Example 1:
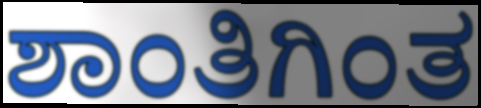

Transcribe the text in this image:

ಶಾಂತಿಗಿಂತ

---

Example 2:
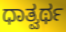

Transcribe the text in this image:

ಧಾತ್ವರ್ಥ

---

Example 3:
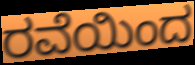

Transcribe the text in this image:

ರವೆಯಿಂದ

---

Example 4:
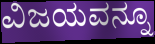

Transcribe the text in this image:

ವಿಜಯವನ್ನೂ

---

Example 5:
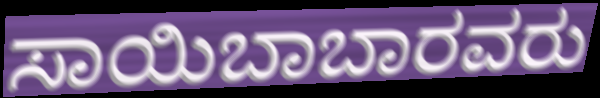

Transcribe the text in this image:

ಸಾಯಿಬಾಬಾರವರು